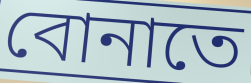
বোনাতে